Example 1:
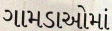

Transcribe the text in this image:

ગામડાઓમાં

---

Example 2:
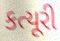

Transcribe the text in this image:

કત્યૂરી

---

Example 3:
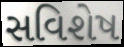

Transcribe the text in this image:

સવિશેષ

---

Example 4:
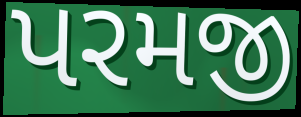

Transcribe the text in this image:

પરમજી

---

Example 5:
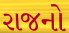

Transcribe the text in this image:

રાજનો